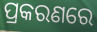
ପ୍ରକରଣରେ